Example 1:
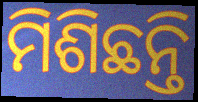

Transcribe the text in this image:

ମିଶିଛନ୍ତି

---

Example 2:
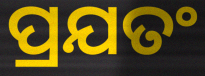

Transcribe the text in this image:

ପ୍ରଯତଂ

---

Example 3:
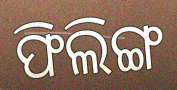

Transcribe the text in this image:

ଫିଲିଙ୍ଗ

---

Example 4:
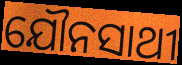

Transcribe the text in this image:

ଯୌନସାଥୀ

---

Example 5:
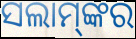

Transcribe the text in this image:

ସଲାମ୍‌ଙ୍କର